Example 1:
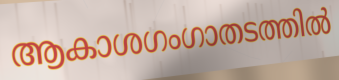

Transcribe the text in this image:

ആകാശഗംഗാതടത്തിൽ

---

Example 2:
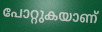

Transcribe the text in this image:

പോറ്റുകയാണ്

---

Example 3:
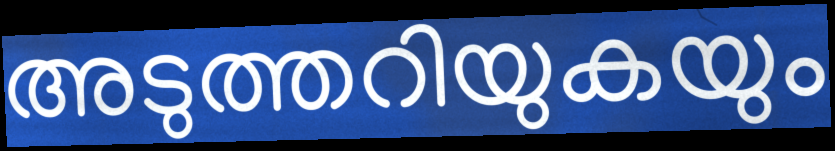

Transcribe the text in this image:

അടുത്തറിയുകയും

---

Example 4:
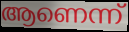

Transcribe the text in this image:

ആണെന്ന്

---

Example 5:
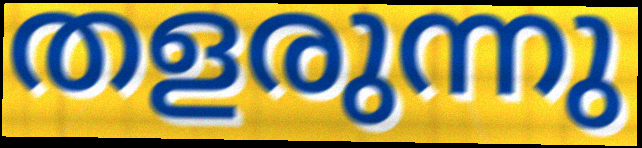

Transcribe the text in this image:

തളരുന്നു